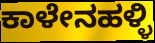
ಕಾಳೇನಹಳ್ಳಿ